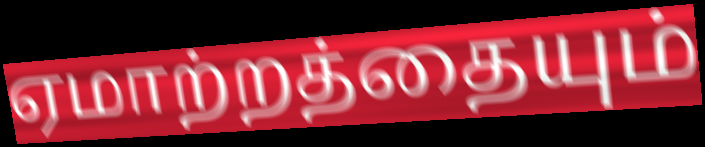
ஏமாற்றத்தையும்